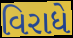
વિરાધે